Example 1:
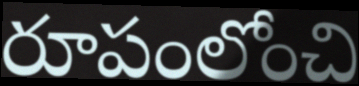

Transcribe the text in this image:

రూపంలోంచి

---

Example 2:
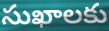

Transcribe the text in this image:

సుఖాలకు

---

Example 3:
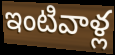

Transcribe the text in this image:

ఇంటివాళ్ల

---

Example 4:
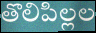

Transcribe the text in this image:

తొలిపిల్లల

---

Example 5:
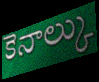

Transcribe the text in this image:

కెనాల్కు